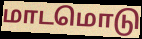
மாடமொடு